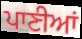
ਪਾਣੀਆਂ